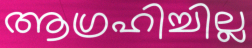
ആഗ്രഹിച്ചില്ല